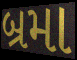
બ્રમા